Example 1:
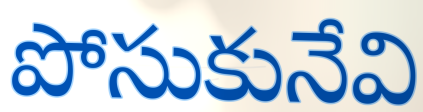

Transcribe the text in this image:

పోసుకునేవి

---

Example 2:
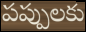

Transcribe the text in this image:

పప్పులకు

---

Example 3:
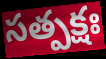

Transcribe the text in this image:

సత్పక్షః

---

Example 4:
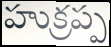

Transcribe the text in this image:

హుక్రప్ప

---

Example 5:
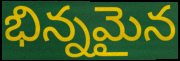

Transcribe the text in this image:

భిన్నమైన